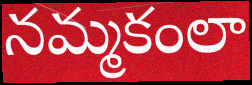
నమ్మకంలా